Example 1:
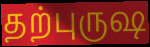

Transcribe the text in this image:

தற்புருஷ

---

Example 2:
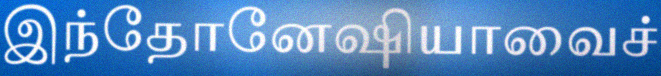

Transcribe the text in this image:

இந்தோனேஷியாவைச்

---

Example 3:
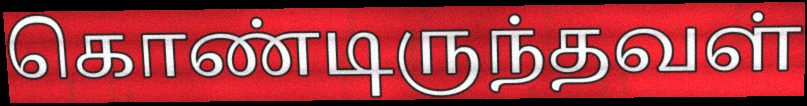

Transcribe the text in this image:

கொண்டிருந்தவள்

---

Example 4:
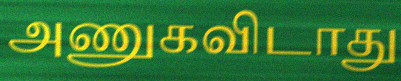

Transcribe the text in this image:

அணுகவிடாது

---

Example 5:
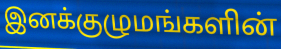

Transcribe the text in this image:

இனக்குழுமங்களின்